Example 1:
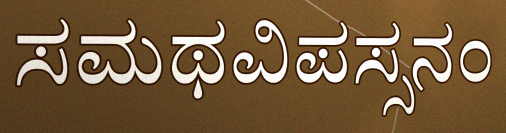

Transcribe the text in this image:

ಸಮಥವಿಪಸ್ಸನಂ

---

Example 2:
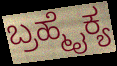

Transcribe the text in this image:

ಬ್ರಹ್ಮೈಕ್ಯ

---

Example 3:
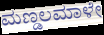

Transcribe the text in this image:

ಮಣ್ಡಲಮಾಳೇ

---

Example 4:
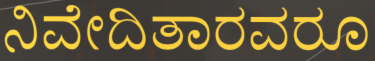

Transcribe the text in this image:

ನಿವೇದಿತಾರವರೂ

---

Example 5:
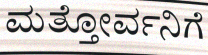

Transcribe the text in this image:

ಮತ್ತೋರ್ವನಿಗೆ